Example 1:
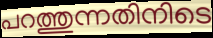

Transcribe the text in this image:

പറത്തുന്നതിനിടെ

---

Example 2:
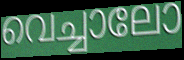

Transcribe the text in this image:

വെച്ചാലോ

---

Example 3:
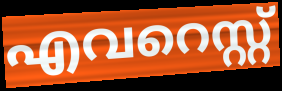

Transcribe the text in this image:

എവറെസ്റ്റ്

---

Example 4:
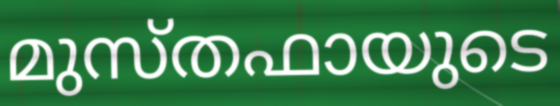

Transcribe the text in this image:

മുസ്തഫായുടെ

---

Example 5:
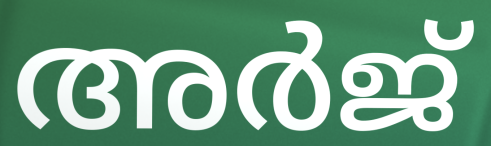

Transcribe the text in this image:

അർജ്